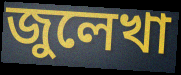
জুলেখা